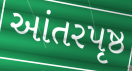
આંતરપૃષ્ઠ